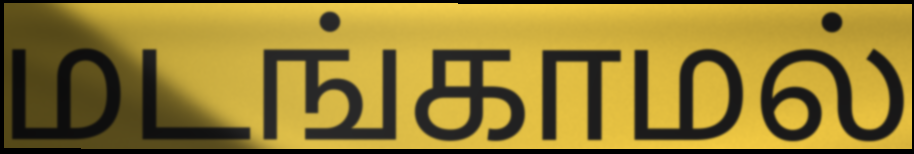
மடங்காமல்